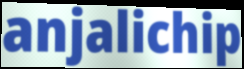
anjalichip